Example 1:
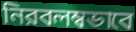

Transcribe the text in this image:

নিরবলম্বভাবে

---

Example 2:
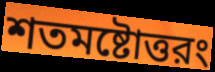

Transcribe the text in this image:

শতমষ্টোত্তরং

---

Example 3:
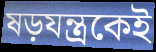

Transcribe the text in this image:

ষড়যন্ত্রকেই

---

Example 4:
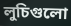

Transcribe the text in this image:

লুচিগুলো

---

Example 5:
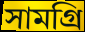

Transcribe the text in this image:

সামগ্রি